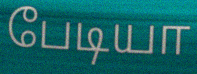
பேடியா